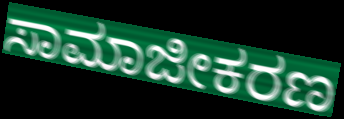
ಸಾಮಾಜೀಕರಣ